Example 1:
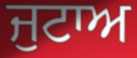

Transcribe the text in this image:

ਜੁਟਾਅ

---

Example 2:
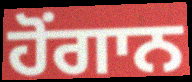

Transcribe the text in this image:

ਹੋਂਗਾਨ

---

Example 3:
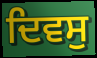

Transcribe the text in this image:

ਦਿਵਸੁ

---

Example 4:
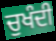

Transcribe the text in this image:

ਚੁਖੰਦੀ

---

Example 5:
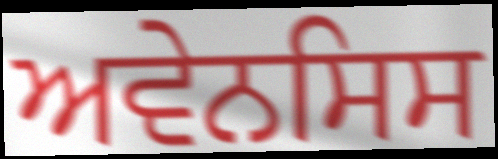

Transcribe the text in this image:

ਅਵੇਨਸਿਸ